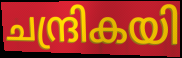
ചന്ദ്രികയി